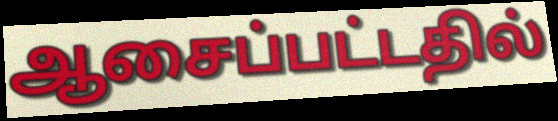
ஆசைப்பட்டதில்